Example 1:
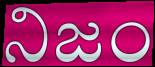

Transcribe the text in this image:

నిజం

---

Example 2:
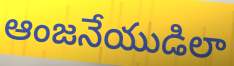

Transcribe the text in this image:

ఆంజనేయుడిలా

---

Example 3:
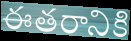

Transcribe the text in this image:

ఈతరానికి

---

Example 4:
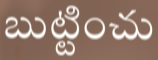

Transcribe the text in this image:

బుట్టించు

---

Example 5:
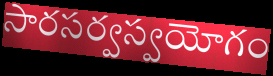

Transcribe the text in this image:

సారసర్వస్వయోగం